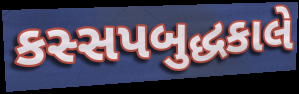
કસ્સપબુદ્ધકાલે